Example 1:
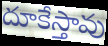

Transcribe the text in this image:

దూకేస్తావు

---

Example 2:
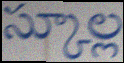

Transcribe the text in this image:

స్కూల్ల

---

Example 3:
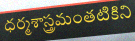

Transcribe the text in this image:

ధర్మశాస్త్రమంతటికిని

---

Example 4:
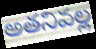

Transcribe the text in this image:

అతనివల్ల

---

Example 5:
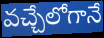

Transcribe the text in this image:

వచ్చేలోగానే